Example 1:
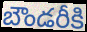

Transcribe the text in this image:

బౌండరీకి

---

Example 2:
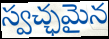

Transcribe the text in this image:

స్వచ్ఛమైన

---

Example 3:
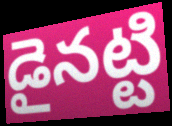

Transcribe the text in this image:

డైనట్టి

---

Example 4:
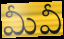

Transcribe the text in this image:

మీవీ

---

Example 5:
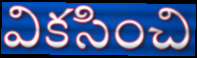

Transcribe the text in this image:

వికసించి